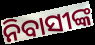
ନିବାସୀଙ୍କ